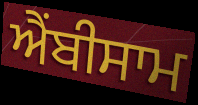
ਐਂਬੀਸਾਮ